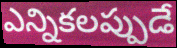
ఎన్నికలప్పుడే